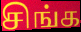
சிங்க